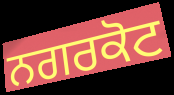
ਨਗਰਕੋਟ